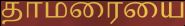
தாமரையை